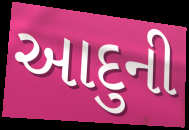
આદુની